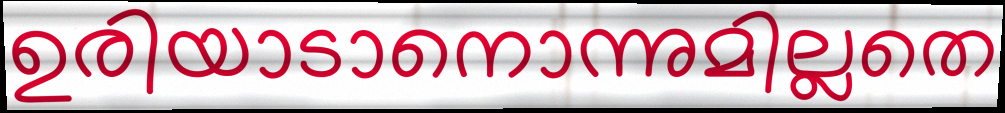
ഉരിയാടാനൊന്നുമില്ലതെ